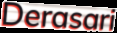
Derasari